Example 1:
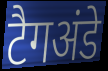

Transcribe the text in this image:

टैगअंडे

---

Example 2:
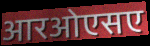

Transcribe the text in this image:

आरओएसए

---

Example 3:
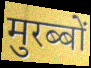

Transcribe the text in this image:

मुरब्बों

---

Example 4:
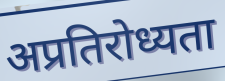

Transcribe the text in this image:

अप्रतिरोध्यता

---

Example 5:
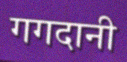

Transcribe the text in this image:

गगदानी